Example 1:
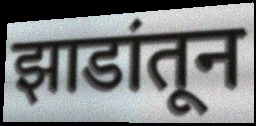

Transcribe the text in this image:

झाडांतून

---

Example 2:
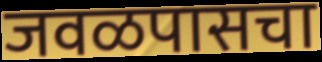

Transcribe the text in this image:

जवळपासचा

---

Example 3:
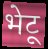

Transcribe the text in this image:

भेटू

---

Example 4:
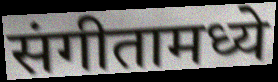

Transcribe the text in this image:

संगीतामध्ये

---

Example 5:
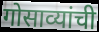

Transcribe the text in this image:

गोसाव्यांची